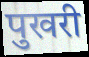
पुखरी